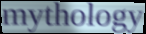
mythology